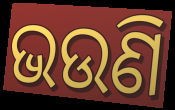
ଭଉଣି